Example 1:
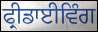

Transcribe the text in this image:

ਫ੍ਰੀਡਾਈਵਿੰਗ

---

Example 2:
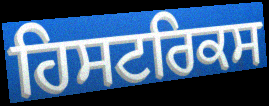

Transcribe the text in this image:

ਹਿਸਟਰਿਕਸ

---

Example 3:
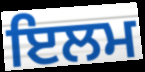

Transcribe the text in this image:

ਇਲਮ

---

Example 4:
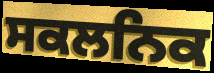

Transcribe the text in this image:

ਸਕਲਨਿਕ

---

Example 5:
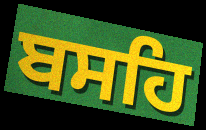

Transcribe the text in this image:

ਬਸਹਿ